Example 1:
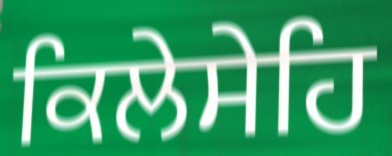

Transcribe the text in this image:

ਕਿਲੇਸੇਹਿ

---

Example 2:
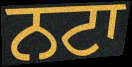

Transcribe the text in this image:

ਨਟਾ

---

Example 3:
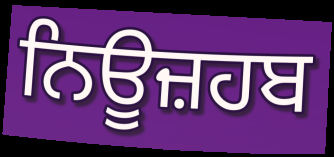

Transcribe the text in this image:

ਨਿਊਜ਼ਹਬ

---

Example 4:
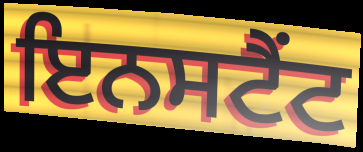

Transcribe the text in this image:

ਇਨਸਟੈਂਟ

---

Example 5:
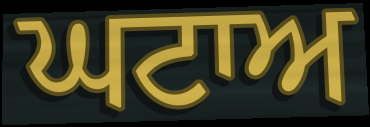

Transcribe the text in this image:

ਘਟਾਅ